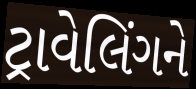
ટ્રાવેલિંગને